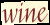
wine